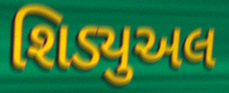
શિડ્યુઅલ